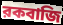
রকবাজি